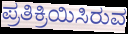
ಪ್ರತಿಕ್ರಿಯಿಸಿರುವ